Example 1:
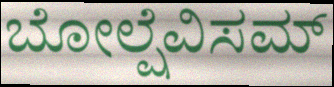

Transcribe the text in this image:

ಬೋಲ್ಷೆವಿಸಮ್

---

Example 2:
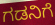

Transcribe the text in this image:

ಗಡನಿಗೆ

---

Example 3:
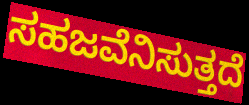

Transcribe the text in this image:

ಸಹಜವೆನಿಸುತ್ತದೆ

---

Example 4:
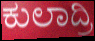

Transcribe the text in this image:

ಕುಲಾದ್ರಿ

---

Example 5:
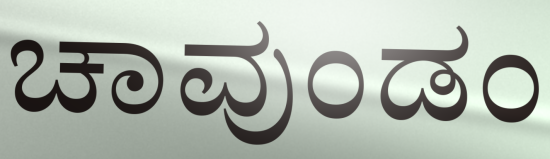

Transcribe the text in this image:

ಚಾವುಂಡಂ